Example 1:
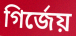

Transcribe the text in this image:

গির্জেয়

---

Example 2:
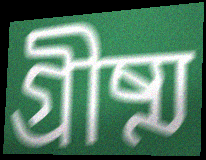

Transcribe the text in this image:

গ্রীষ্ম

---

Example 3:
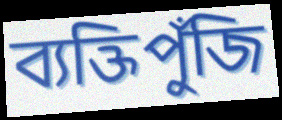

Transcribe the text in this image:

ব্যক্তিপুঁজি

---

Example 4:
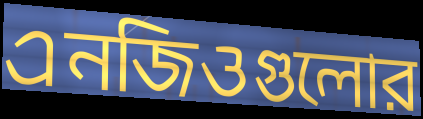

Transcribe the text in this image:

এনজিওগুলোর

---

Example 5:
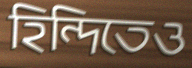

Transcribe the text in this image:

হিন্দিতেও